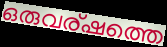
ഒരുവര്ഷത്തെ